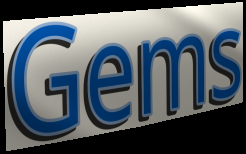
Gems